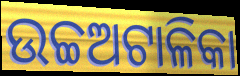
ଉଚ୍ଚଅଟାଳିକା